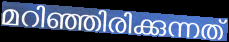
മറിഞ്ഞിരിക്കുന്നത്